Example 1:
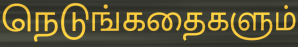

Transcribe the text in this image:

நெடுங்கதைகளும்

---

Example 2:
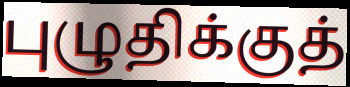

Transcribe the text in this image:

புழுதிக்குத்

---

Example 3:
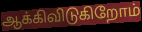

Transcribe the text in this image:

ஆக்கிவிடுகிறோம்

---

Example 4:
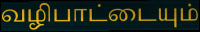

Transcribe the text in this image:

வழிபாட்டையும்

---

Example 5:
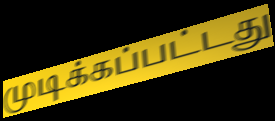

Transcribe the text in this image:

முடிக்கப்பட்டது